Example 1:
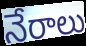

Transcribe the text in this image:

నేరాలు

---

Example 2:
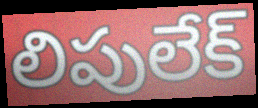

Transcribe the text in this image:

లిపులేక్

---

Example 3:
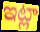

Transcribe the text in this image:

ఇట్లా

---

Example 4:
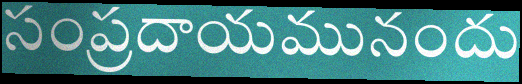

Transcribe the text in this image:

సంప్రదాయమునందు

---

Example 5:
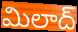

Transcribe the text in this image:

మిలాద్